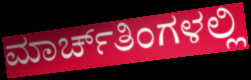
ಮಾರ್ಚ್‌ತಿಂಗಳಲ್ಲಿ